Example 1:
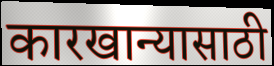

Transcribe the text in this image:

कारखान्यासाठी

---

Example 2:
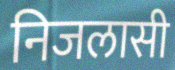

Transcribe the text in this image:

निजलासी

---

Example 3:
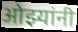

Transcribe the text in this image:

ओझ्यांनी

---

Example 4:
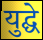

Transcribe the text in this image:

युद्घे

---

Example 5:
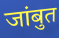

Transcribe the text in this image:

जांबुत